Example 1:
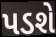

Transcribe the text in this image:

પડશે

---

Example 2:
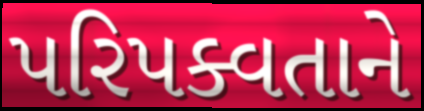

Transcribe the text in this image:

પરિપક્વતાને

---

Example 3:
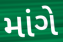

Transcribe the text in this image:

માંગે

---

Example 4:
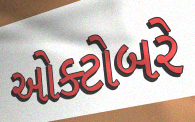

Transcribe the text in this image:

ઓક્ટોબરે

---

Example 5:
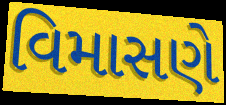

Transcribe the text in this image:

વિમાસણે